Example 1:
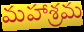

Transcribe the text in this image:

మహాశ్రమ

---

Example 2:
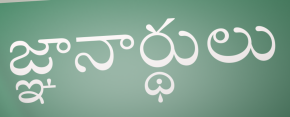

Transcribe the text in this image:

జ్ఞానార్థులు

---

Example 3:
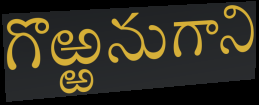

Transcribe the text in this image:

గొఱ్ఱనుగాని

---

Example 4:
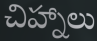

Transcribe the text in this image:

చిహ్నాలు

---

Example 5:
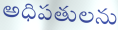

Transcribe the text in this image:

అధిపతులను